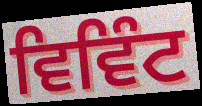
ਵਿਵਿੰਟ